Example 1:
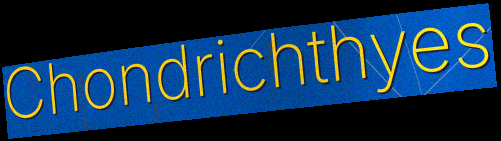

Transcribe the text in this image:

Chondrichthyes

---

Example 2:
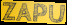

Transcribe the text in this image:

ZAPU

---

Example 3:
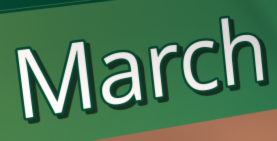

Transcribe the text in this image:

March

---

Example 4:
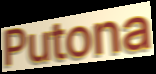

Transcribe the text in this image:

Putona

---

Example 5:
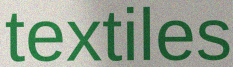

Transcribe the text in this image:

textiles